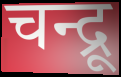
चन्द्रू